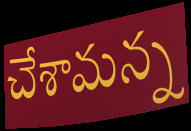
చేశామన్న